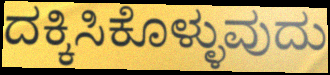
ದಕ್ಕಿಸಿಕೊಳ್ಳುವುದು